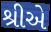
શ્રીએ